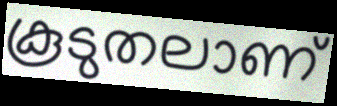
കൂടുതലാണ്